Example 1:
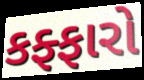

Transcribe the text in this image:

કફ્ફારો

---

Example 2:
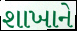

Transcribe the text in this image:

શાખાને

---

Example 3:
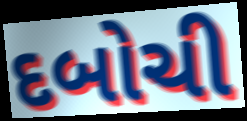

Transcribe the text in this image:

દબોચી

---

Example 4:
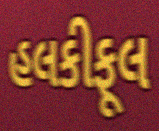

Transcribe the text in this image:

હલકીફૂલ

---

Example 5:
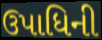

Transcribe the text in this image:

ઉપાધિની